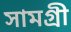
সামগ্রী